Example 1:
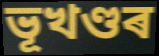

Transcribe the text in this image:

ভূখণ্ডৰ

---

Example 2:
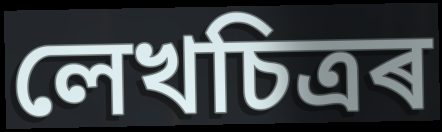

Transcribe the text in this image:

লেখচিত্ৰৰ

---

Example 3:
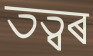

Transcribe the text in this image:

তত্বৰ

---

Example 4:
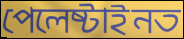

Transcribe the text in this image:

পেলেষ্টাইনত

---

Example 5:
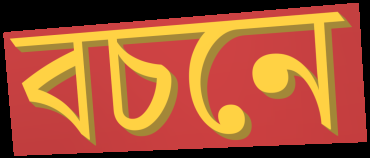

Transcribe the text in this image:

বচনে